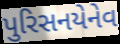
પુરિસનયેનેવ